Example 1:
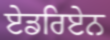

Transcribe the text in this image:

ਏਡਰਿਏਨ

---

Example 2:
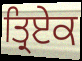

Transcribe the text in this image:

ਤ੍ਰਿਏਕ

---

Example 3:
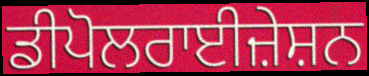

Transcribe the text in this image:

ਡੀਪੋਲਰਾਈਜ਼ੇਸ਼ਨ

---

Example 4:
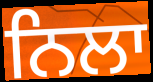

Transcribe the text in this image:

ਨਿਲਾ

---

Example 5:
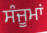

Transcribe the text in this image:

ਸੰਜੂਮਾਂ